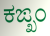
ಕಙ್ಖಂ